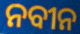
ନବୀନ